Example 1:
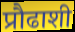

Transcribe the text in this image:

प्रौढाशी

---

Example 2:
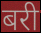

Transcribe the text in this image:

बरी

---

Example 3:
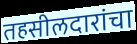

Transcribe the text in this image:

तहसीलदारांचा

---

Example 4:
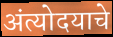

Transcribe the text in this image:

अंत्योदयाचे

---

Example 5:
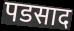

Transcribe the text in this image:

पडसाद